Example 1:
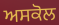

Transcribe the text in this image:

ਅਸਕੋਲ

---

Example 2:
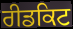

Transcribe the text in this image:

ਰੀਡਕਿਟ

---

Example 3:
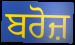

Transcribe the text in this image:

ਬਰੋਜ਼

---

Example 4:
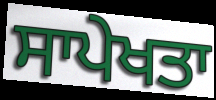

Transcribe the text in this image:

ਸਾਪੇਖਤਾ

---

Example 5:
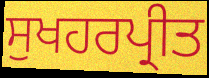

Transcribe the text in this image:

ਸੁਖਹਰਪ੍ਰੀਤ